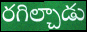
రగిల్చాడు